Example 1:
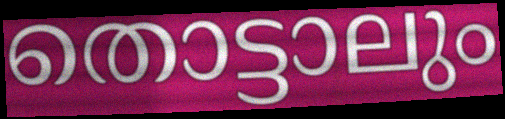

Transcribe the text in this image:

തൊട്ടാലും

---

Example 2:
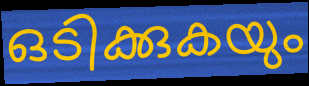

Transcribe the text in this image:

ഒടിക്കുകയും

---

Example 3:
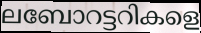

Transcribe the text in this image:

ലബോറട്ടറികളെ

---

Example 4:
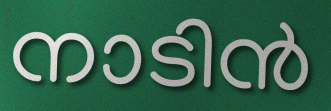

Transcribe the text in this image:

നാടിൻ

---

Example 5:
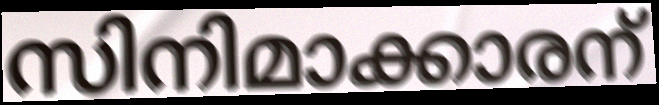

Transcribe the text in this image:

സിനിമാക്കാരന്